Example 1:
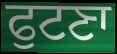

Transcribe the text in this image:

ਫੁਟਣਾ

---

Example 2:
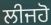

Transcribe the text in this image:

ਲੀਜਹੋ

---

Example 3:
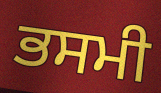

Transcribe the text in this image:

ਭਸਮੀ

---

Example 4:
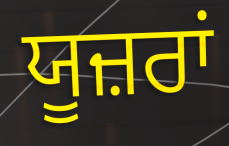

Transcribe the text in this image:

ਯੂਜ਼ਰਾਂ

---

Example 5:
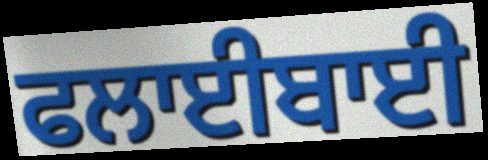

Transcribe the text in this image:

ਫਲਾਈਬਾਈ